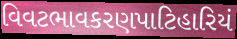
વિવટભાવકરણપાટિહારિયં